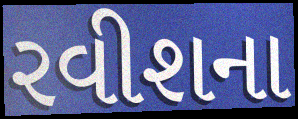
રવીશના